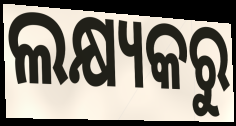
ଲକ୍ଷ୍ୟକରୁ